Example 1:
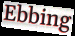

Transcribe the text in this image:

Ebbing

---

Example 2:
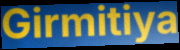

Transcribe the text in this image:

Girmitiya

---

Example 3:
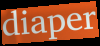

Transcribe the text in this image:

diaper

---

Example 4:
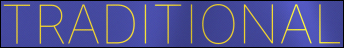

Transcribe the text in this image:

TRADITIONAL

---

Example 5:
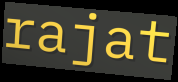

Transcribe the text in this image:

rajat